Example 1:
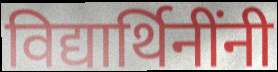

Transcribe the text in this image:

विद्यार्थिनींनी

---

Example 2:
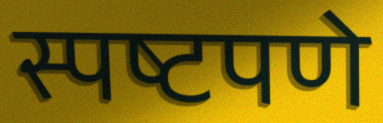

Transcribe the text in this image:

स्‍पष्‍टपणे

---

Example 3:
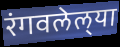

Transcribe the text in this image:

रंगवलेल्या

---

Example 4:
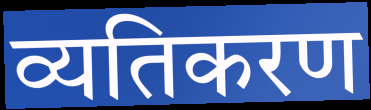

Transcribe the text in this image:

व्यतिकरण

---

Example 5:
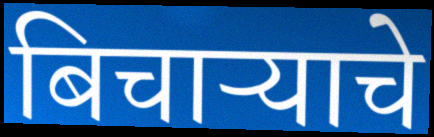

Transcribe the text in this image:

बिचाऱ्याचे